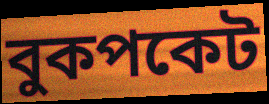
বুকপকেট